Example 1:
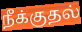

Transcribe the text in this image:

நீக்குதல்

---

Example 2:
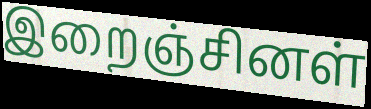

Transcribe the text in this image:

இறைஞ்சினள்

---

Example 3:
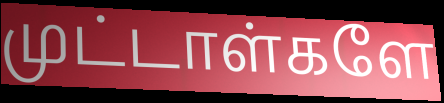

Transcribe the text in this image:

முட்டாள்களே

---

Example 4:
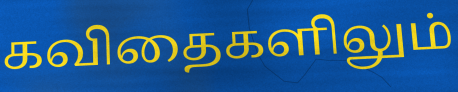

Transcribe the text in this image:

கவிதைகளிலும்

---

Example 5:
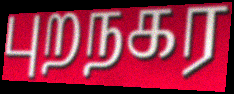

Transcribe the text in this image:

புறநகர